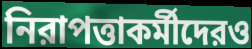
নিরাপত্তাকর্মীদেরও